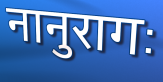
नानुरागः